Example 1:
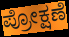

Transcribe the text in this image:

ಪ್ರೋಕ್ಷಣೆ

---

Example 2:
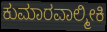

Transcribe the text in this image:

ಕುಮಾರವಾಲ್ಮೀಕಿ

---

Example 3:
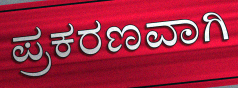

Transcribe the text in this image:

ಪ್ರಕರಣವಾಗಿ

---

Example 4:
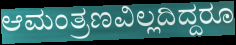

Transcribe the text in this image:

ಆಮಂತ್ರಣವಿಲ್ಲದಿದ್ದರೂ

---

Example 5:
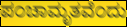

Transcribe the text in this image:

ಪಂಚಾಮೃತವೆಂದು